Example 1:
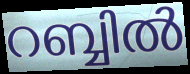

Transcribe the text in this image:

റബ്ബിൽ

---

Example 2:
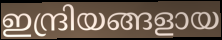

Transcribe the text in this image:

ഇന്ദ്രിയങ്ങളായ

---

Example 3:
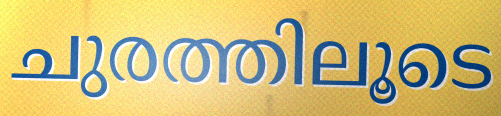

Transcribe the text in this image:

ചുരത്തിലൂടെ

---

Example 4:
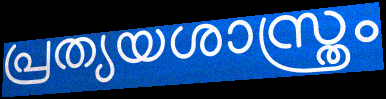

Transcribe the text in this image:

പ്രത്യയശാസ്ത്രം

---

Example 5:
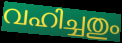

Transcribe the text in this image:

വഹിച്ചതും